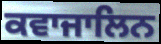
ਕਵਾਜਾਲਿਨ